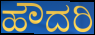
ಹೌದರಿ